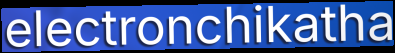
electronchikatha